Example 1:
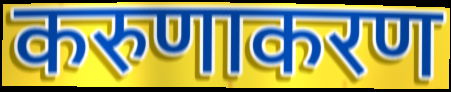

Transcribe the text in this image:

करुणाकरण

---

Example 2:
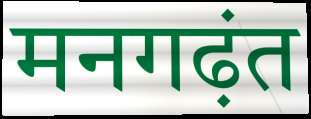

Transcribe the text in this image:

मनगढ़ंत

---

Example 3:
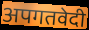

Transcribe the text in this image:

अपगतवेदी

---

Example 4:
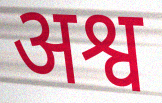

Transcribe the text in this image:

अश्व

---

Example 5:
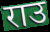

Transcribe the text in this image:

राउ